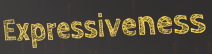
Expressiveness